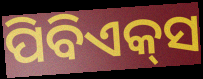
ପିବିଏକ୍‌ସ